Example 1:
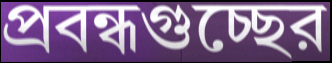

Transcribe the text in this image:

প্রবন্ধগুচ্ছের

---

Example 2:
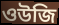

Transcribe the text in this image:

ওউজি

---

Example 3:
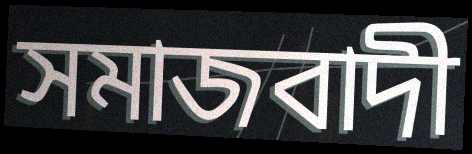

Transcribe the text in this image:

সমাজবাদী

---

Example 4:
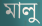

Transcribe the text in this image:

মালু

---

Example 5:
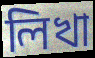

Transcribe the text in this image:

লিখা